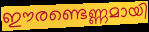
ഈരണ്ടെണ്ണമായി